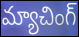
మ్యాచింగ్